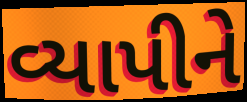
વ્યાપીને